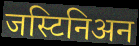
जस्टिनिअन